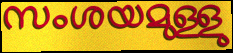
സംശയമുള്ളു